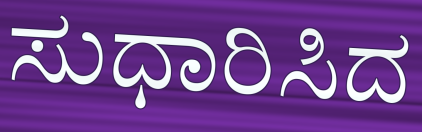
ಸುಧಾರಿಸಿದ